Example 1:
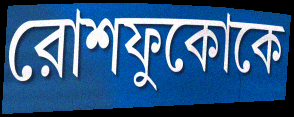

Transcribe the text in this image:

রোশফুকোকে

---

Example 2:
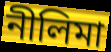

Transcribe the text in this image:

নীলিমা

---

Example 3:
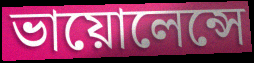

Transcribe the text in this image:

ভায়োলেন্সে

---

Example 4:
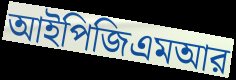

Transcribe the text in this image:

আইপিজিএমআর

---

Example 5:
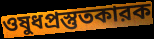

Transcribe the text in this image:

ওষুধপ্রস্তুতকারক